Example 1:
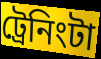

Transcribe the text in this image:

ট্রেনিংটা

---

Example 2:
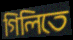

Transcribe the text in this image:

গিলিতে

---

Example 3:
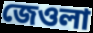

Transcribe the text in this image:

জেওলা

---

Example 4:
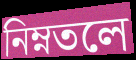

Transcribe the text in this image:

নিম্নতলে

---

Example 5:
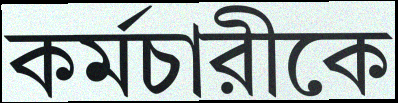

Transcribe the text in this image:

কর্মচারীকে